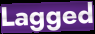
Lagged